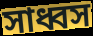
সাধ্বস